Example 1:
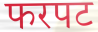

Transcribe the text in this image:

फरपट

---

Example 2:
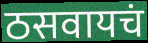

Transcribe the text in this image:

ठसवायचं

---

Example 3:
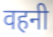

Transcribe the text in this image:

वहनी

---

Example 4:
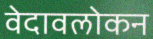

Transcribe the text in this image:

वेदावलोकन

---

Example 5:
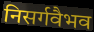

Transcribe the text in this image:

निसर्गवैभव